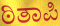
ಠಿತಾಪಿ